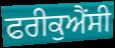
ਫਰੀਕੁਐਂਸੀ